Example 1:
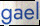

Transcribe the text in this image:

gael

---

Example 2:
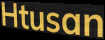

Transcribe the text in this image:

Htusan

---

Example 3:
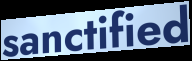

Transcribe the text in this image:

sanctified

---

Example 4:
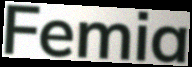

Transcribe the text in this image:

Femia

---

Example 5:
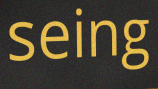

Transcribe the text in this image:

seing